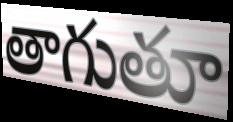
తాగుతూ